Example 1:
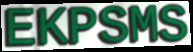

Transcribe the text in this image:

EKPSMS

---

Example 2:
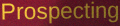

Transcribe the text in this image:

Prospecting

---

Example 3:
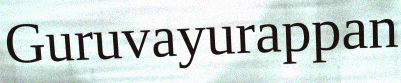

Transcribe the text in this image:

Guruvayurappan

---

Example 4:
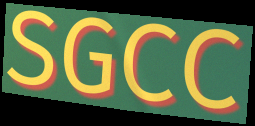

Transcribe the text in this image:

SGCC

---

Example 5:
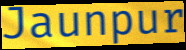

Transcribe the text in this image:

Jaunpur